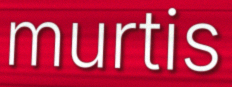
murtis